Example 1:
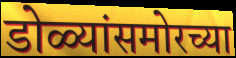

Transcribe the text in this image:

डोळ्यांसमोरच्या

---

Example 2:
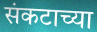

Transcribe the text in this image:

संकटाच्या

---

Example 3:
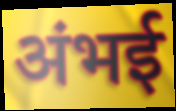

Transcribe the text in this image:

अंभई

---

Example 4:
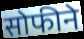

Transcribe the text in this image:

सोफीने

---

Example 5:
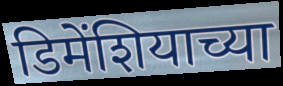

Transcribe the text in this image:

डिमेंशियाच्या